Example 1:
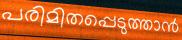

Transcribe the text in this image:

പരിമിതപ്പെടുത്താൻ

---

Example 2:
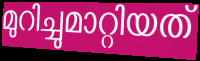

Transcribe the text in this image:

മുറിച്ചുമാറ്റിയത്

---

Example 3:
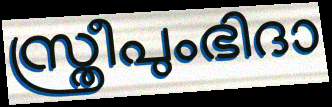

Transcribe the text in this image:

സ്ത്രീപുംഭിദാ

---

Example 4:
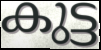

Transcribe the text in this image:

കുട്ട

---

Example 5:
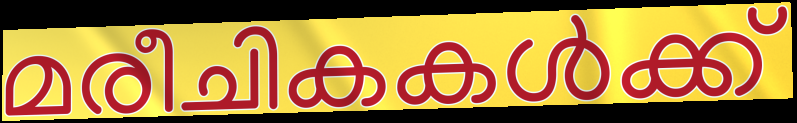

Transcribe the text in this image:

മരീചികകൾക്ക്